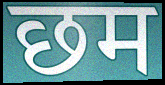
छम